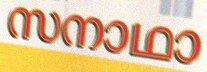
സനാഥാ